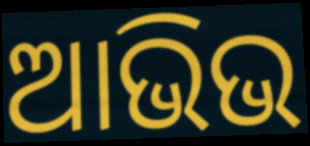
ଆଭିଭ